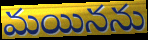
మయినను